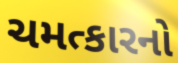
ચમત્કારનો